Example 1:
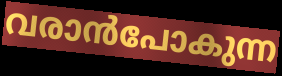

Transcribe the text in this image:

വരാൻപോകുന്ന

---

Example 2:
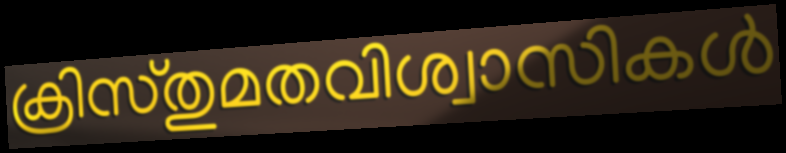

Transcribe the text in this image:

ക്രിസ്തുമതവിശ്വാസികൾ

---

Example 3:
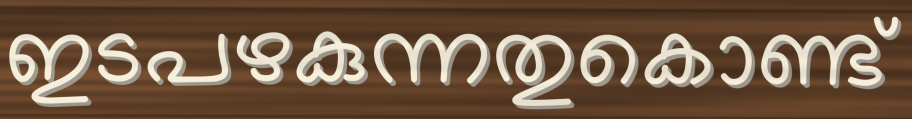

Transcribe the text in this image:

ഇടപഴകുന്നതുകൊണ്ട്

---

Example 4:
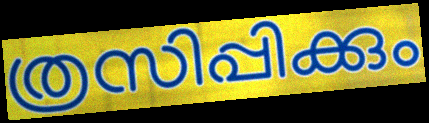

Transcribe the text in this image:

ത്രസിപ്പിക്കും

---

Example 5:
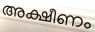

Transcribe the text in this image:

അക്ഷീണം